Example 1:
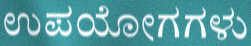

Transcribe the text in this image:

ಉಪಯೋಗಗಳು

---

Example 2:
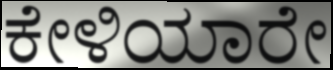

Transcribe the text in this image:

ಕೇಳಿಯಾರೇ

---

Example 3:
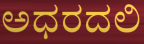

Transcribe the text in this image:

ಅಧರದಲಿ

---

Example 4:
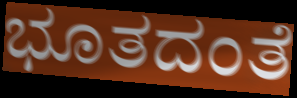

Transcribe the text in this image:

ಭೂತದಂತೆ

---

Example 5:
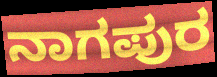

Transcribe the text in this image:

ನಾಗಪುರ